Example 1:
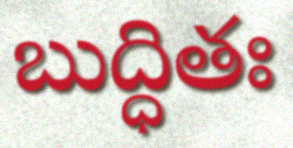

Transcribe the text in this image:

బుద్ధితః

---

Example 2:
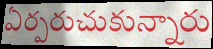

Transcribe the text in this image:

ఏర్పరుచుకున్నారు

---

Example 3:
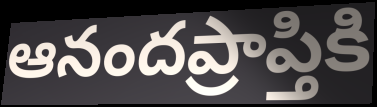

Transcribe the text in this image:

ఆనందప్రాప్తికి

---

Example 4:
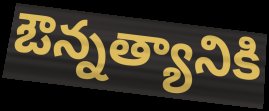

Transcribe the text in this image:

ఔన్నత్యానికి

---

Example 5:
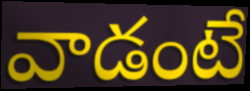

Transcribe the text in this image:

వాడంటే